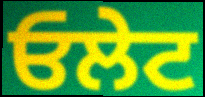
ਓਲੇਟ